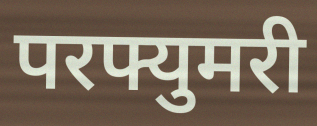
परफ्युमरी